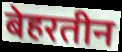
बेहरतीन